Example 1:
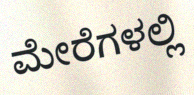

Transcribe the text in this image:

ಮೇರೆಗಳಲ್ಲಿ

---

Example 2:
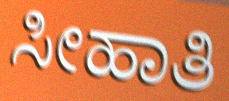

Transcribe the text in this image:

ಸೀಹಾತಿ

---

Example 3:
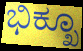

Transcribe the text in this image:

ಭಿಕ್ಖೂ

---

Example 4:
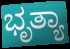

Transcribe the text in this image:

ಭೃತ್ಯಾ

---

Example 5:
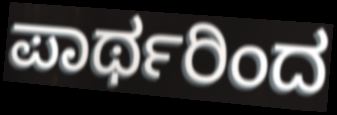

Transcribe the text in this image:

ಪಾರ್ಥರಿಂದ